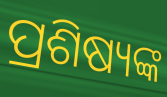
ପ୍ରଶିଷ୍ୟଙ୍କ